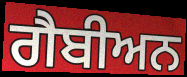
ਗੈਬੀਅਨ